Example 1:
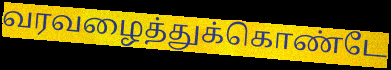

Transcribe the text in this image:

வரவழைத்துக்கொண்டே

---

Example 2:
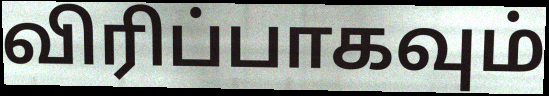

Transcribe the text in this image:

விரிப்பாகவும்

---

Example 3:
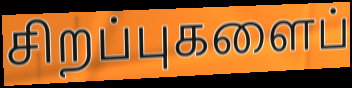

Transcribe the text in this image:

சிறப்புகளைப்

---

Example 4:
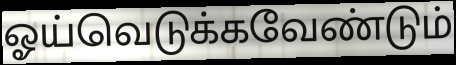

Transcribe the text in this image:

ஓய்வெடுக்கவேண்டும்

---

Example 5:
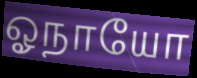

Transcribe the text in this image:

ஓநாயோ